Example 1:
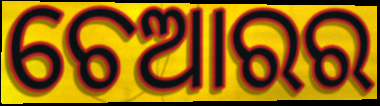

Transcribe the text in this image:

ଚେଆରର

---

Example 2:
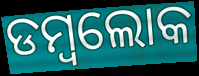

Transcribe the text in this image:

ଡମ୍ବଲୋକ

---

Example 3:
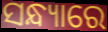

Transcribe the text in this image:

ସନ୍ଧ୍ୟାରେ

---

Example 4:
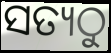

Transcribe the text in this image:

ସତ୍ୟଠୁ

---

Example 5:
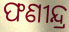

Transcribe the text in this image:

ଫଣୀନ୍ଦ୍ର